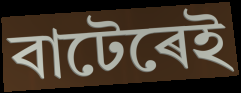
বাটেৰেই